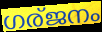
ഗര്ജനം